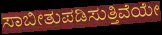
ಸಾಬೀತುಪಡಿಸುತ್ತಿವೆಯೇ